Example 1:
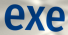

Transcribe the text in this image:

exe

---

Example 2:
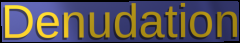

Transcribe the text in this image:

Denudation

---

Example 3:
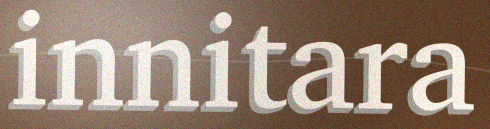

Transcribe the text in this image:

innitara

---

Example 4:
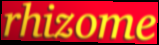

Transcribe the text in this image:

rhizome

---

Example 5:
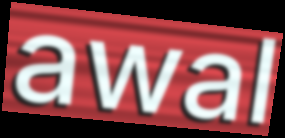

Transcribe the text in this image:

awal